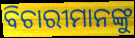
ବିଚାରୀମାନଙ୍କୁ